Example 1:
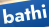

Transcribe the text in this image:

bathi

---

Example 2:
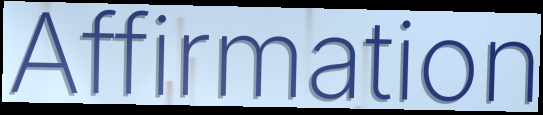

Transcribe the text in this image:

Affirmation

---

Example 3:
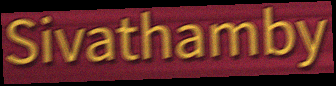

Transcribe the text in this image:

Sivathamby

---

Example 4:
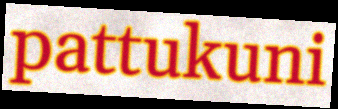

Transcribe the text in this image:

pattukuni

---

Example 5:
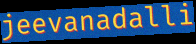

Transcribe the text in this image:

jeevanadalli